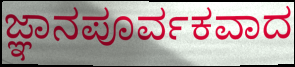
ಜ್ಞಾನಪೂರ್ವಕವಾದ